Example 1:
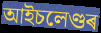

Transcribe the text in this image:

আইচলেণ্ডৰ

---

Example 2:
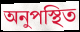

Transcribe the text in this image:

অনুপস্থিত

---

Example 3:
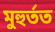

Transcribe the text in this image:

মুহুৰ্তত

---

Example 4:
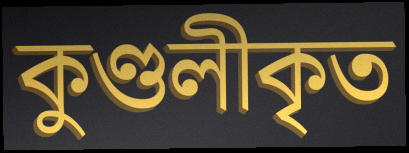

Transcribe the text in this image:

কুণ্ডলীকৃত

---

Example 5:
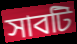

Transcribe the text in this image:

সাবটি